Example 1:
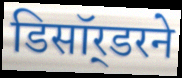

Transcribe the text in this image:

डिसॉर्डरने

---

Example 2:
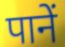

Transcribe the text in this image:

पानें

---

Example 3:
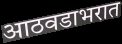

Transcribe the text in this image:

आठवडाभरात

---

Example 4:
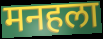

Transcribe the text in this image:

मनहला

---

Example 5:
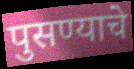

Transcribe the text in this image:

पुसण्याचे